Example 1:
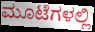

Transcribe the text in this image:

ಮೂಟೆಗಳಲ್ಲಿ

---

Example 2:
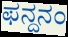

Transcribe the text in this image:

ಫನ್ದನಂ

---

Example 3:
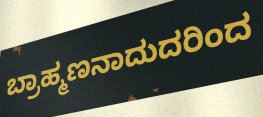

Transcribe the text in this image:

ಬ್ರಾಹ್ಮಣನಾದುದರಿಂದ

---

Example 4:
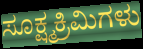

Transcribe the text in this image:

ಸೂಕ್ಷ್ಮಕ್ರಿಮಿಗಳು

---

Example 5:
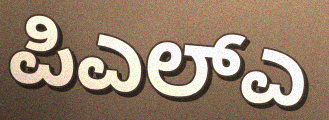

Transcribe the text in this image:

ಪಿಎಲ್ಎ